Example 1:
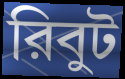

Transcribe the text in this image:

রিবুট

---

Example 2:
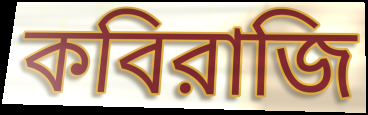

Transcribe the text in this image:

কবিরাজি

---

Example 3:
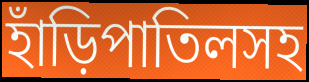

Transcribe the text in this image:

হাঁড়িপাতিলসহ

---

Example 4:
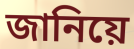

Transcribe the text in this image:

জানিয়ে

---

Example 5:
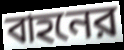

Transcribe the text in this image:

বাহনের